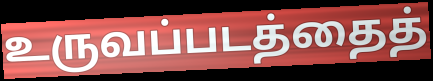
உருவப்படத்தைத்